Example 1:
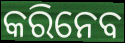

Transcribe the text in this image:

କରିନେବ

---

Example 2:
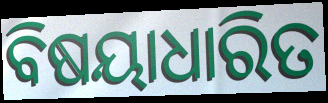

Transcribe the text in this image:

ବିଷୟାଧାରିତ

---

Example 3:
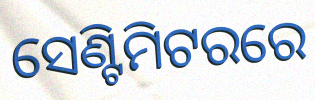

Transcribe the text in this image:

ସେଣ୍ଟିମିଟରରେ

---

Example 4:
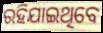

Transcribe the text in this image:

ରହିଯାଇଥିବେ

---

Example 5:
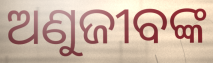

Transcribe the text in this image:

ଅଣୁଜୀବଙ୍କ